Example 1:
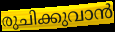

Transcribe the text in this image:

രുചിക്കുവാൻ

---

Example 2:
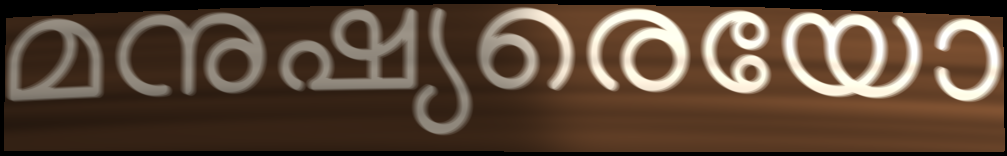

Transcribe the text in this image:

മനുഷ്യരെയോ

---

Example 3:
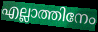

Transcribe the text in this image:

എല്ലാത്തിനേം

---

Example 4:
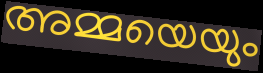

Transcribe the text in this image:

അമ്മയെയും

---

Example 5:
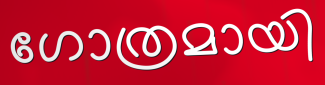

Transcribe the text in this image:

ഗോത്രമായി